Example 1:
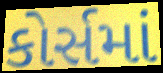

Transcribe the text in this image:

કોર્સમાં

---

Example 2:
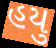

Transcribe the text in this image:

હયુ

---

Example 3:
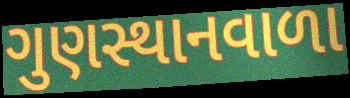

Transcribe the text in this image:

ગુણસ્થાનવાળા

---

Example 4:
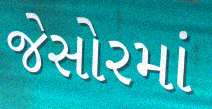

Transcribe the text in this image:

જેસોરમાં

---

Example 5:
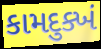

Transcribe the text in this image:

કામદુક્ખં